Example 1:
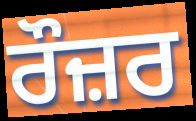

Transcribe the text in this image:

ਰੌਜ਼ਰ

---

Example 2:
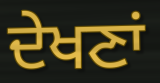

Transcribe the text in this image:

ਦੇਖਣਾਂ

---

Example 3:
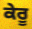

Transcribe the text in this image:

ਕੇਰੂ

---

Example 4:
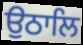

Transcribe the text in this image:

ਉਠਾਲਿ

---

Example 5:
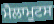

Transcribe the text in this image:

ਮੈਲਾਮੂਟਸ